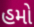
હમો